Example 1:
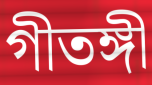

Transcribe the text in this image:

গীতঙ্গী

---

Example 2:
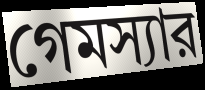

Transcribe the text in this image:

গেমস্যার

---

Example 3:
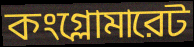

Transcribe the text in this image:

কংগ্লোমারেট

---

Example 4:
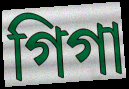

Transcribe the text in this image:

গিগা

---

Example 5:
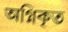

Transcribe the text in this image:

অগ্নিকৃত